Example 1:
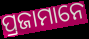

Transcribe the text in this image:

ପ୍ରଜାମାନେ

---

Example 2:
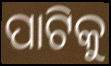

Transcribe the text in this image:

ପାଟିକୁ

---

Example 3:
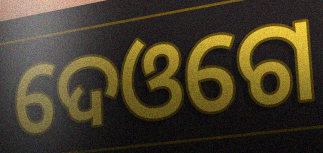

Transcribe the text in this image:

ଦେଓଗେ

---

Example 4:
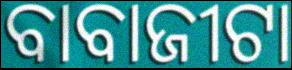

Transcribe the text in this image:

ବାବାଜୀଟା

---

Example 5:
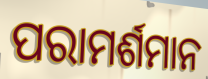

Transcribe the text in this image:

ପରାମର୍ଶମାନ